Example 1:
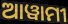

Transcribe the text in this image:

ଆୱାମୀ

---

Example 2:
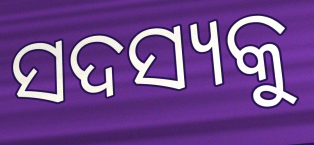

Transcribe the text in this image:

ସଦସ୍ୟକୁ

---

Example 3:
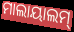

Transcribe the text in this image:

ମାଲାୟାଲମ୍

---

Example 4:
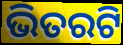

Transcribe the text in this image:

ଭିତରଟି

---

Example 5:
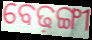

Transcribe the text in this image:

ବେଢ଼ଙ୍ଗୀ